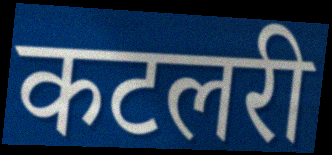
कटलरी